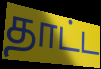
தாட்ட